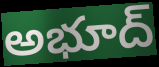
అభూద్